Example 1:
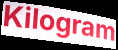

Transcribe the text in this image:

Kilogram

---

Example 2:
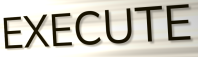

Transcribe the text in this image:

EXECUTE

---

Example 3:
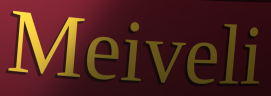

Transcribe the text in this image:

Meiveli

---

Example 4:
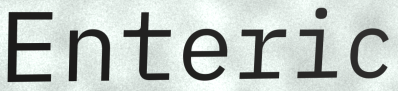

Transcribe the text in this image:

Enteric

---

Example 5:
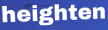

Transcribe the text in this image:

heighten